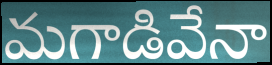
మగాడివేనా